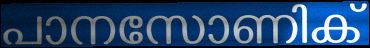
പാനസോണിക്